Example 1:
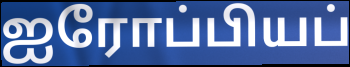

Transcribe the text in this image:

ஐரோப்பியப்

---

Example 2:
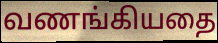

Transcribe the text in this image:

வணங்கியதை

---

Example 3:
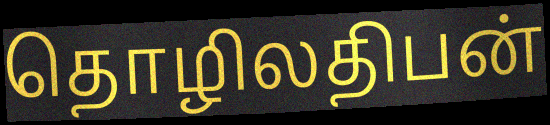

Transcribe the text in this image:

தொழிலதிபன்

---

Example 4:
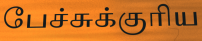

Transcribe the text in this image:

பேச்சுக்குரிய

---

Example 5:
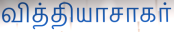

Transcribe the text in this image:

வித்தியாசாகர்